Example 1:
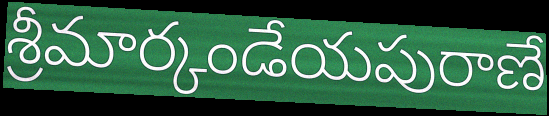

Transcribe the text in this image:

శ్రీమార్కండేయపురాణే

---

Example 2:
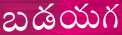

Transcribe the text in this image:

బడయగ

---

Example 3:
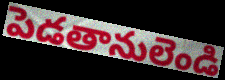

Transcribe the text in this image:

పెడతానులెండి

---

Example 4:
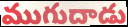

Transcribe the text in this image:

ముగుదాడు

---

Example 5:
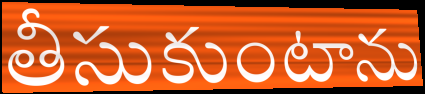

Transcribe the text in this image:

తీసుకుంటాను